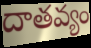
దాతవ్యం